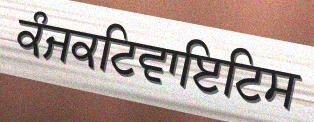
ਕੰਜਕਟਿਵਾਇਟਿਸ